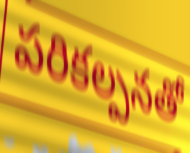
పరికల్పనతో